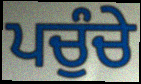
ਪਚੁੰਚੇ